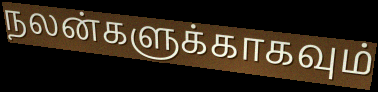
நலன்களுக்காகவும்